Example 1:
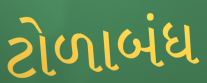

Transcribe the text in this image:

ટોળાબંધ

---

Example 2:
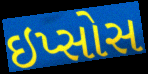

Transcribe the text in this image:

ઇપ્સોસ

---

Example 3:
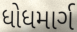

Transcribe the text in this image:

ધોધમાર્ગ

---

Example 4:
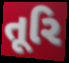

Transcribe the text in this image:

તૂરિ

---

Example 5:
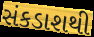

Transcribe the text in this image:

સંકડાશથી